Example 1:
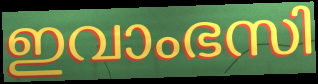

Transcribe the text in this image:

ഇവാംഭസി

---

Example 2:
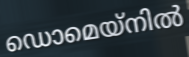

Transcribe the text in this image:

ഡൊമെയ്നിൽ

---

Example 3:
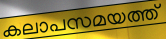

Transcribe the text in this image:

കലാപസമയത്ത്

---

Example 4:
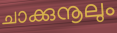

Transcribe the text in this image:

ചാക്കുനൂലും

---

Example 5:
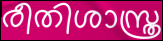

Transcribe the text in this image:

രീതിശാസ്ത്ര